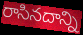
రాసినదాన్ని